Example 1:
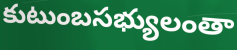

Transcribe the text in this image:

కుటుంబసభ్యులంతా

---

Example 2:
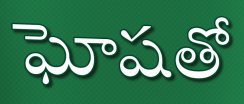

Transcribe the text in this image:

ఘోషతో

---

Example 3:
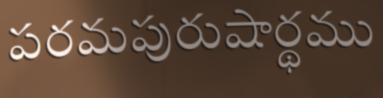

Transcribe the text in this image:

పరమపురుషార్థము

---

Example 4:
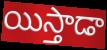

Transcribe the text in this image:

యిస్తాడా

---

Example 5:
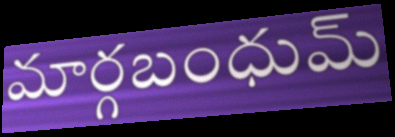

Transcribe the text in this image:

మార్గబంధుమ్